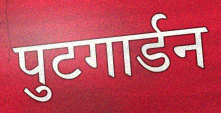
पुटगार्डन